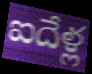
ఐదేళ్ల